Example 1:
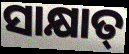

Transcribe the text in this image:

ସାକ୍ଷାତ୍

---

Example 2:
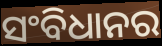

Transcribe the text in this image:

ସଂବିଧାନର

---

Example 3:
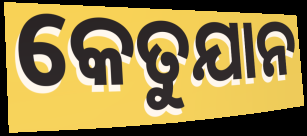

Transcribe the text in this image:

କେତୁଯାନ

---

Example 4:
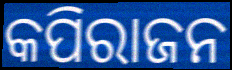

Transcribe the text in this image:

କପିରାଜନ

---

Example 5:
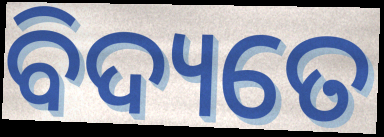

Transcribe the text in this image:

ବିଦ୍ୟତେ